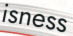
isness